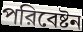
পরিবেষ্টন